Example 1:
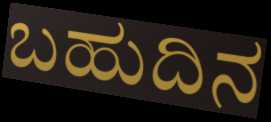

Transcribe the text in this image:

ಬಹುದಿನ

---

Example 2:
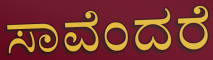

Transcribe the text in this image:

ಸಾವೆಂದರೆ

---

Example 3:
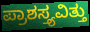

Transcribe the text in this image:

ಪ್ರಾಶಸ್ತ್ಯವಿತ್ತು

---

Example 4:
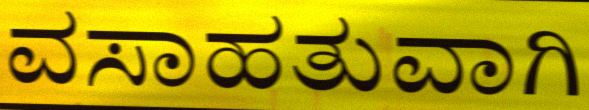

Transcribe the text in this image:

ವಸಾಹತುವಾಗಿ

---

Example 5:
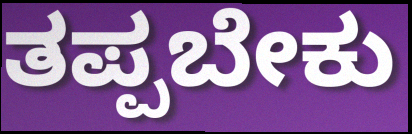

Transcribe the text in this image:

ತಪ್ಪಬೇಕು